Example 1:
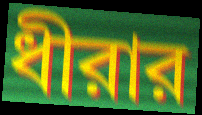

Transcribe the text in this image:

ধীরার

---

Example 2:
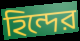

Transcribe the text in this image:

হিন্দের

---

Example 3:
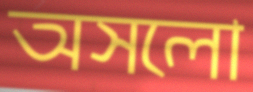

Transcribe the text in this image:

অসলো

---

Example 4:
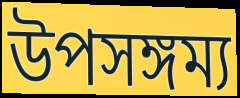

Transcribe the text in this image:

উপসঙ্গম্য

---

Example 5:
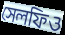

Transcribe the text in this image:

সেলফিও